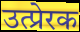
उत्प्रेरक